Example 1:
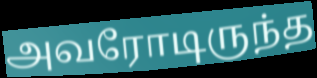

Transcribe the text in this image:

அவரோடிருந்த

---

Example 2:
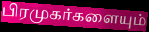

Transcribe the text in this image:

பிரமுகர்களையும்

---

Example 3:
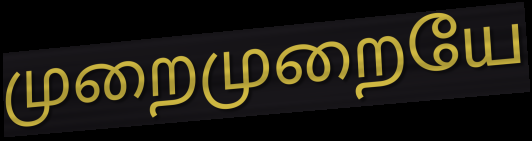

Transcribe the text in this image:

முறைமுறையே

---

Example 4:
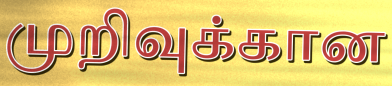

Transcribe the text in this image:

முறிவுக்கான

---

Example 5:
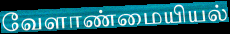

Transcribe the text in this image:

வேளாண்மையியல்